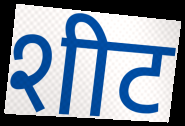
शीट